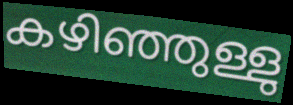
കഴിഞ്ഞുള്ളു